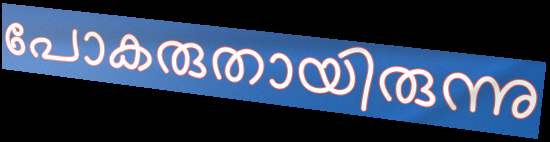
പോകരുതായിരുന്നു